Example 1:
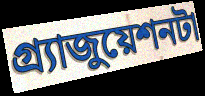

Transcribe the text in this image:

গ্র্যাজুয়েশনটা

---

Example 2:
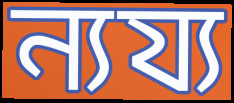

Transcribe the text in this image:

ন্যয্য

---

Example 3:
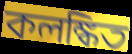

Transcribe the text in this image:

কলঙ্কিত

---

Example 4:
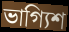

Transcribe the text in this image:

ভাগ্যিশ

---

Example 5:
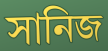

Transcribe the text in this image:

সানিজ